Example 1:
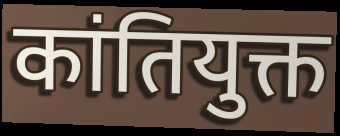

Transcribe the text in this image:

कांतियुक्त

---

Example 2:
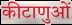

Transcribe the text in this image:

कीटाणुओं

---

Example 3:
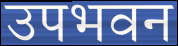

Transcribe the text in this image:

उपभवन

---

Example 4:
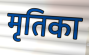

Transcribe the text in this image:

मृतिका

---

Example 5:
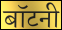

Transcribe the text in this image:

बॉटनी